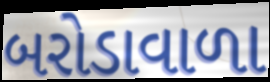
બરોડાવાળા